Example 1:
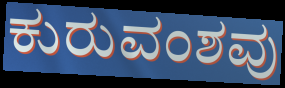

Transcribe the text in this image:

ಕುರುವಂಶವು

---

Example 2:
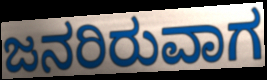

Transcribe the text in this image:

ಜನರಿರುವಾಗ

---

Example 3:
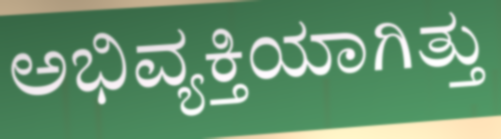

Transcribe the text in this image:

ಅಭಿವ್ಯಕ್ತಿಯಾಗಿತ್ತು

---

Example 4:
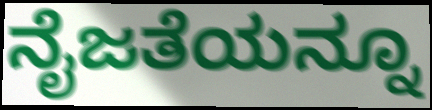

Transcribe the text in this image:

ನೈಜತೆಯನ್ನೂ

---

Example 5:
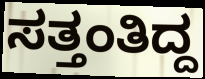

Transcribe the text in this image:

ಸತ್ತಂತಿದ್ದ